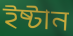
ইষ্টান